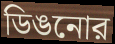
ডিঙনোর